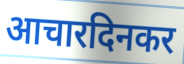
आचारदिनकर